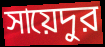
সায়েদুর